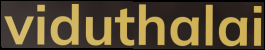
viduthalai